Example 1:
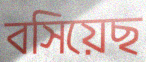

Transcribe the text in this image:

বসিয়েছ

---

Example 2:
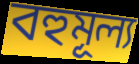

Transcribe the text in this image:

বহুমূল্য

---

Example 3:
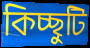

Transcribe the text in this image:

কিচ্ছুটি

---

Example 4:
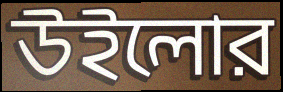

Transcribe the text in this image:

উইলোর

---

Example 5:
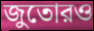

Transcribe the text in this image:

জুতোরও